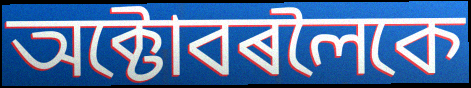
অক্টোবৰলৈকে